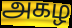
அகழ